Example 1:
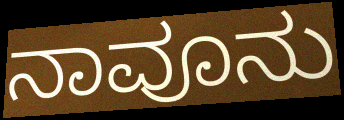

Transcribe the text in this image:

ನಾವೂನು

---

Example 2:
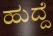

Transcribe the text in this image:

ಹುದ್ದೆ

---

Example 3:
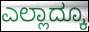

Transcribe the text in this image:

ಎಲ್ಲಾದ್ಕೂ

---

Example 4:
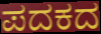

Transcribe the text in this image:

ಪದಕದ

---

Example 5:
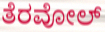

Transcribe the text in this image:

ತೆರವೋಲ್